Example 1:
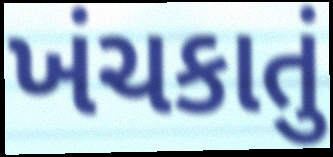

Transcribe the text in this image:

ખંચકાતું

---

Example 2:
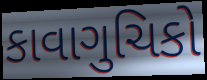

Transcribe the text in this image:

કાવાગુચિકો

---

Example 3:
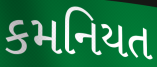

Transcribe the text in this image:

કમનિયત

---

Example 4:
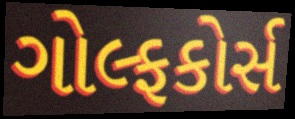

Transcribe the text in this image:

ગોલ્ફકોર્સ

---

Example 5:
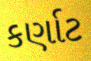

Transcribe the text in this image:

કર્ણાટ